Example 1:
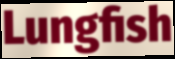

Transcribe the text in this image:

Lungfish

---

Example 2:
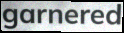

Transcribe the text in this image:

garnered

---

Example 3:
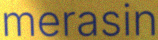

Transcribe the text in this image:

merasin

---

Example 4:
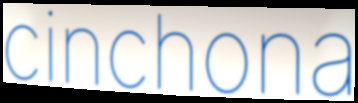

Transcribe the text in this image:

cinchona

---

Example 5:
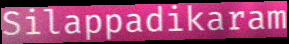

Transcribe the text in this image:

Silappadikaram